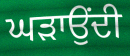
ਘੜਾਉਂਦੀ